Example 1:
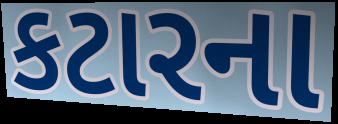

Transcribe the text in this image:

કટારના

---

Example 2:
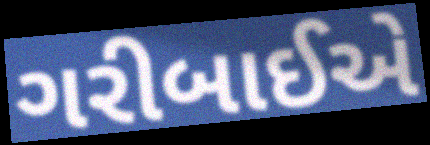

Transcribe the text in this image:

ગરીબાઈએ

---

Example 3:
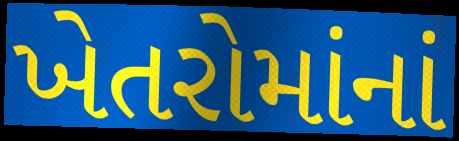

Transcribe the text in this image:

ખેતરોમાંનાં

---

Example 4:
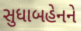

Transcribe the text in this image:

સુધાબહેનને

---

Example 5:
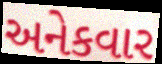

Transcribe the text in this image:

અનેકવાર